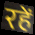
रहें